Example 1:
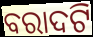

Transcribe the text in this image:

ବରାଦଟି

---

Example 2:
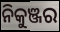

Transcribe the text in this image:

ନିକୁଞ୍ଜର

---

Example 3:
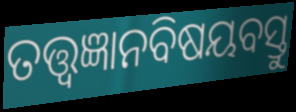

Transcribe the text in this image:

ତତ୍ତ୍ୱଜ୍ଞାନବିଷୟବସ୍ତୁ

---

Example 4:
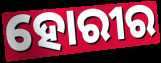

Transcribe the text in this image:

ହୋରୀର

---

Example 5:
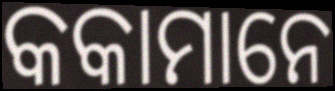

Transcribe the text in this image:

କକାମାନେ